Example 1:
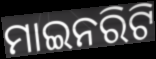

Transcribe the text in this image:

ମାଇନରିଟି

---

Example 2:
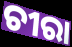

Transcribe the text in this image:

ଚୀରା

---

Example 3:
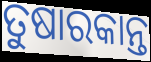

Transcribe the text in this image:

ତୁଷାରକାନ୍ତ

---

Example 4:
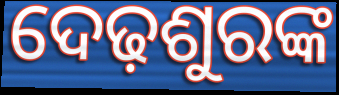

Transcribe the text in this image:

ଦେଢ଼ଶୁରଙ୍କ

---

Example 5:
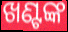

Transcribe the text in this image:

ଖଣ୍ଟଙ୍କ